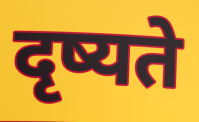
दृष्यते